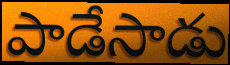
పాడేసాడు